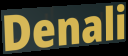
Denali